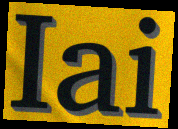
Iai